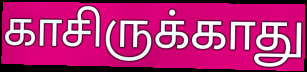
காசிருக்காது